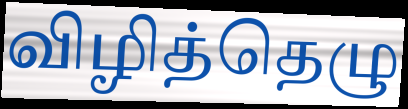
விழித்தெழு